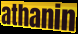
athanin